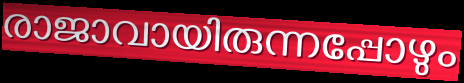
രാജാവായിരുന്നപ്പോഴും